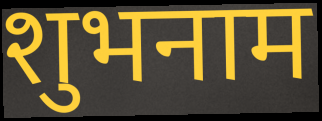
शुभनाम